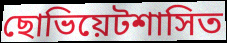
ছোভিয়েটশাসিত